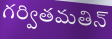
గర్వితమతిన్